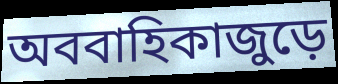
অববাহিকাজুড়ে